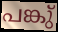
പങ്കു്